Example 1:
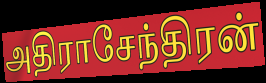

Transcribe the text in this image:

அதிராசேந்திரன்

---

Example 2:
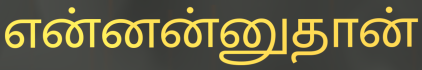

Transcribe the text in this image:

என்னன்னுதான்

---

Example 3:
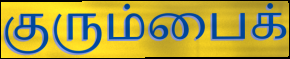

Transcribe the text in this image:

குரும்பைக்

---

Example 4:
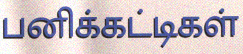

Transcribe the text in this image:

பனிக்கட்டிகள்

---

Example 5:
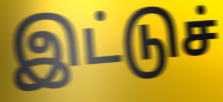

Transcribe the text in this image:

இட்டுச்